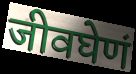
जीवघेणं